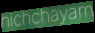
nichchayam